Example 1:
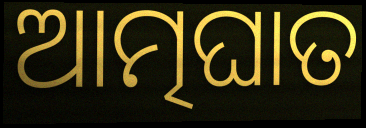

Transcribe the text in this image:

ଆତ୍ମଘାତ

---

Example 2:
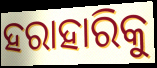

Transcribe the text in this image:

ହରାହାରିକୁ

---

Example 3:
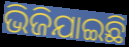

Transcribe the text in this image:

ଭିଜିଯାଇଛି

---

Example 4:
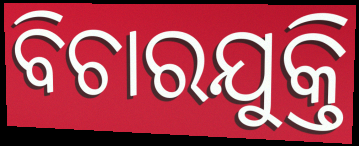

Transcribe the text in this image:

ବିଚାରଯୁକ୍ତି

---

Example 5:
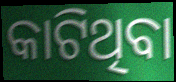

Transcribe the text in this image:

କାଟିଥିବା